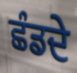
ਛੰਡਦੇ